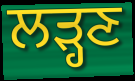
ਲੜ੍ਹਣ